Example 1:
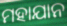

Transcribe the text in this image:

ମହାଯାନ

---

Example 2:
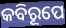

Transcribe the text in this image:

କବିରୂପେ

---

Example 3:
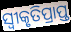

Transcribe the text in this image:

ସ୍ବୀକୃତିପ୍ରାପ୍ତ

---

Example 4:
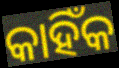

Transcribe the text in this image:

କାହିଁକ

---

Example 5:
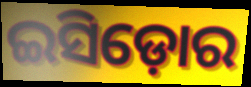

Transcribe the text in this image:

ଇସିଡ଼ୋର